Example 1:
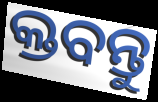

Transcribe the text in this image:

କ୍ତବନ୍ତୁ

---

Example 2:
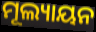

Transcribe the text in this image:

ମୂଲ୍ୟାୟନ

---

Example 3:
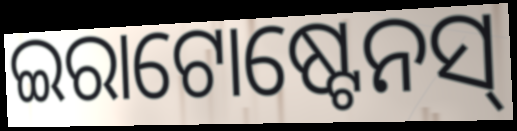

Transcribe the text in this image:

ଇରାଟୋଷ୍ଟେନସ୍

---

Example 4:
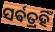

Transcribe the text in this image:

ସର୍ଵତ୍ରହିଁ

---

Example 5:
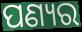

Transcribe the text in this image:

ପଣ୍ୟର